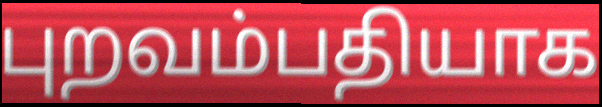
புறவம்பதியாக